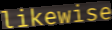
likewise